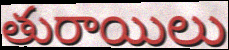
తురాయిలు